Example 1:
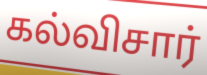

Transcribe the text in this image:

கல்விசார்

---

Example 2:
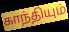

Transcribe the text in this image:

காந்தியும்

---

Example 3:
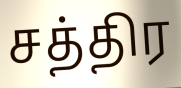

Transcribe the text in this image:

சத்திர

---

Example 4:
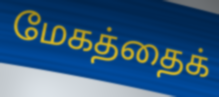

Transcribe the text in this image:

மேகத்தைக்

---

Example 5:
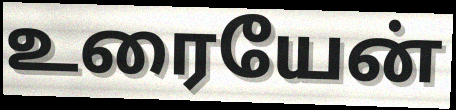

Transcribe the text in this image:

உரையேன்